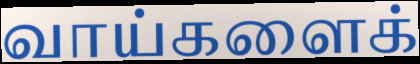
வாய்களைக்